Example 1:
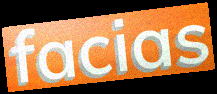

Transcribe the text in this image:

facias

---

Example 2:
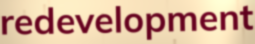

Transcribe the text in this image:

redevelopment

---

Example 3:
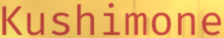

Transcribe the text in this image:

Kushimone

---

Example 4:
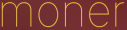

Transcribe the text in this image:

moner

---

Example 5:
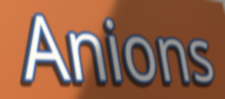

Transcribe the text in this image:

Anions